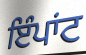
ਇੰਪਾਂਟ